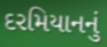
દરમિયાનનું